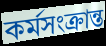
কর্মসংক্রান্ত